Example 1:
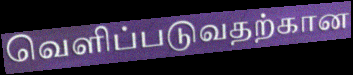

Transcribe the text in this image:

வெளிப்படுவதற்கான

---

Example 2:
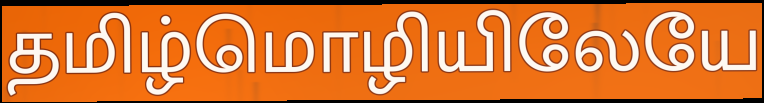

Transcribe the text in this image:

தமிழ்மொழியிலேயே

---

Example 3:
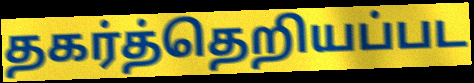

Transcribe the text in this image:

தகர்த்தெறியப்பட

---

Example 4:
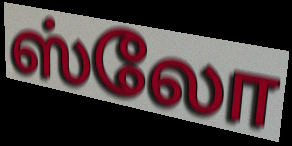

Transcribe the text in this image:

ஸ்லோ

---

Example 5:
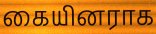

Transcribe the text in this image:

கையினராக